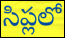
సిప్లలో